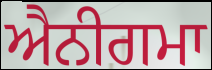
ਐਨੀਗਮਾ